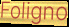
Foligno